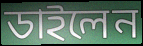
ডাইলেন